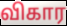
விகார